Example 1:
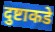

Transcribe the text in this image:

दुष्टाकडे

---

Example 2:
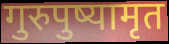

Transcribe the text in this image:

गुरुपुष्यामृत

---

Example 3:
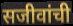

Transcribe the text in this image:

सजीवांची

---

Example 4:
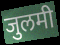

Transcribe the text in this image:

जुलमी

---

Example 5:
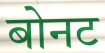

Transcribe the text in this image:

बोनट